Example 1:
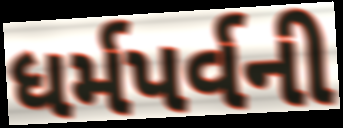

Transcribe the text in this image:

ધર્મપર્વની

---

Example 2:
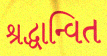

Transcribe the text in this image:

શ્રદ્ધાન્વિત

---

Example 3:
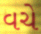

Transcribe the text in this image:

વચે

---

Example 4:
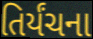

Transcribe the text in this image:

તિર્યંચના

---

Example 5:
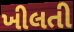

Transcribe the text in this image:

ખીલતી